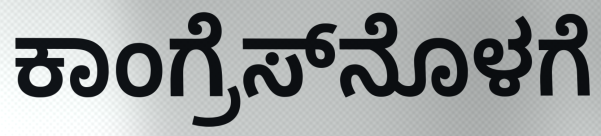
ಕಾಂಗ್ರೆಸ್‌ನೊಳಗೆ